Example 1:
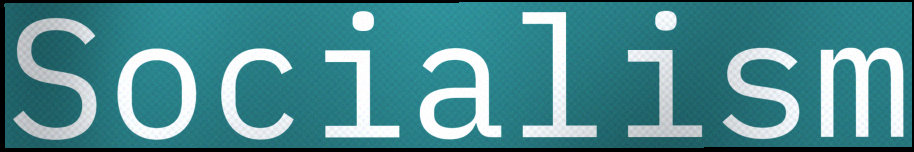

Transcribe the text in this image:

Socialism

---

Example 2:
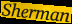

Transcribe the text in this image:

Sherman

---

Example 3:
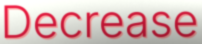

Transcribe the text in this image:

Decrease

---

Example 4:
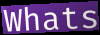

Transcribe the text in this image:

Whats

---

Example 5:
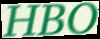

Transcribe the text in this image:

HBO